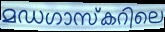
മഡഗാസ്കറിലെ